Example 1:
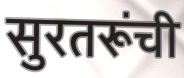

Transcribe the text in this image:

सुरतरूंची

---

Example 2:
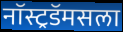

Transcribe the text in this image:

नॉस्ट्रडॅमसला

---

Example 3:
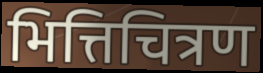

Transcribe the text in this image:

भित्तिचित्रण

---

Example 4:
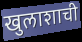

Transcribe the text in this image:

खुलाशाची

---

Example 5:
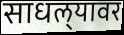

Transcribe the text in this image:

साधल्यावर